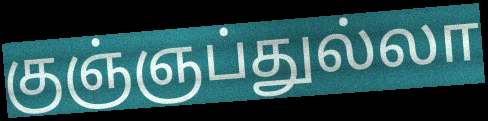
குஞ்ஞப்துல்லா